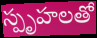
స్పృహలతో